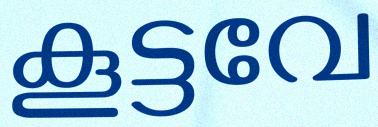
കൂട്ടവേ